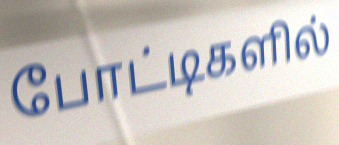
போட்டிகளில்